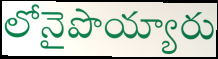
లోనైపొయ్యారు